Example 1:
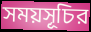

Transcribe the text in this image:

সময়সূচির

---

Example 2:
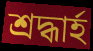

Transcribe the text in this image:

শ্রদ্ধার্হ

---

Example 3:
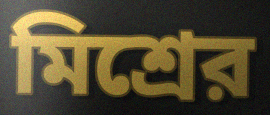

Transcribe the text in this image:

মিশ্রের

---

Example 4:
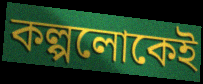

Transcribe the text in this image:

কল্পলোকেই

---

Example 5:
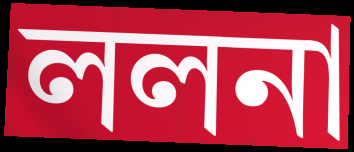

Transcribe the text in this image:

ললনা